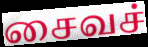
சைவச்